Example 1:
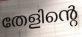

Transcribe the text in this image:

തേളിന്റെ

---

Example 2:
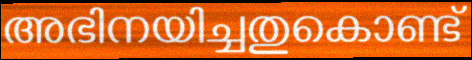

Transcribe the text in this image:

അഭിനയിച്ചതുകൊണ്ട്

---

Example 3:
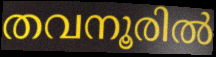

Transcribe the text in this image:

തവനൂരിൽ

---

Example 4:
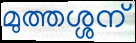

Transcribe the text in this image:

മുത്തശ്ശന്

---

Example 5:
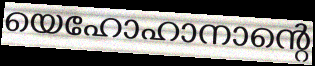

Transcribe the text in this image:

യെഹോഹാനാന്റെ